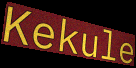
Kekule